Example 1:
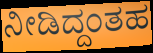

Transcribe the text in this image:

ನೀಡಿದ್ದಂತಹ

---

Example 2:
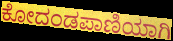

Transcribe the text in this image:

ಕೋದಂಡಪಾಣಿಯಾಗಿ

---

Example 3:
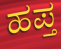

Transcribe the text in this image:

ಹಪ್ತ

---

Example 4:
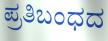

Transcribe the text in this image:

ಪ್ರತಿಬಂಧದ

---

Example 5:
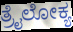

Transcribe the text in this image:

ತ್ರೈಲೋಕ್ಯ